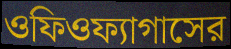
ওফিওফ্যাগাসের